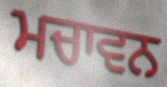
ਮਚਾਵਨ